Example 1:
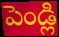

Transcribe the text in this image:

పెండ్లి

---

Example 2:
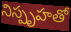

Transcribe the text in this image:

నిస్పృహతో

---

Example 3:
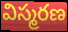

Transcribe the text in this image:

విస్మరణ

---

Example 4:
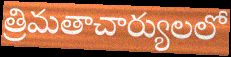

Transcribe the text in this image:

త్రిమతాచార్యులలో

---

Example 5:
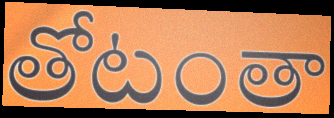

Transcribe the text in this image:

తోటంతా